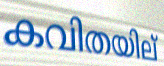
കവിതയില്